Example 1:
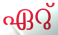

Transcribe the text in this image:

ഏറു്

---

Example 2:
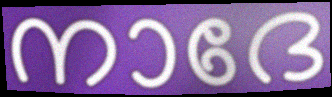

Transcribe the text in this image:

നാദേ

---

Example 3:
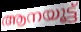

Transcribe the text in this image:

ആനയൂട്ട്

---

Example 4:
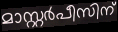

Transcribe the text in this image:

മാസ്റ്റർപീസിന്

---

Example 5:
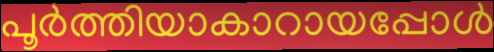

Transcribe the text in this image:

പൂർത്തിയാകാറായപ്പോൾ